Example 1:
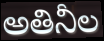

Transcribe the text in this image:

అతినీల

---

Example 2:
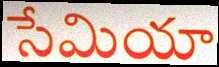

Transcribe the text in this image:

సేమియా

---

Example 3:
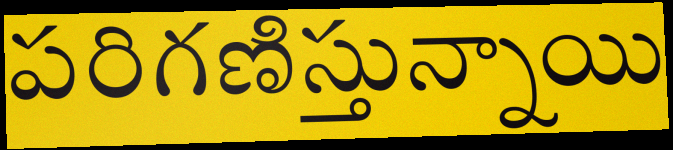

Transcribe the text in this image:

పరిగణిస్తున్నాయి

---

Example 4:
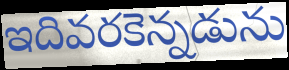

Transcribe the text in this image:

ఇదివరకెన్నడును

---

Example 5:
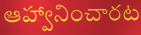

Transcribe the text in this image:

ఆహ్వానించారట